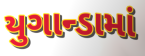
યુગાન્ડામાં